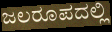
ಜಲರೂಪದಲ್ಲಿ